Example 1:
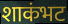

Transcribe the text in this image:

शाकंभट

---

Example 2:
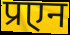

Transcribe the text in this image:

प्रएन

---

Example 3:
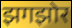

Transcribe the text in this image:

झगझोर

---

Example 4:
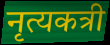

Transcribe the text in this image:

नृत्यकत्री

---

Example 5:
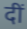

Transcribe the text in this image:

दीं